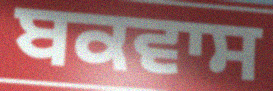
ਬਕਵਾਸ